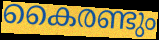
കൈരണ്ടും